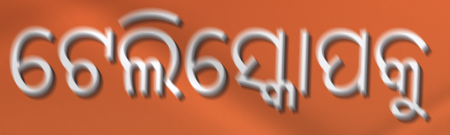
ଟେଲିସ୍କୋପକୁ